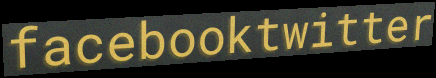
facebooktwitter